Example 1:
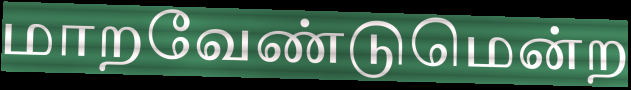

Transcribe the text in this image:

மாறவேண்டுமென்ற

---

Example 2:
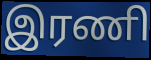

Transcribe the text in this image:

இரணி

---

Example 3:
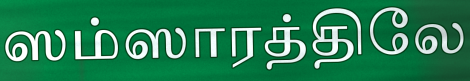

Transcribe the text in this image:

ஸம்ஸாரத்திலே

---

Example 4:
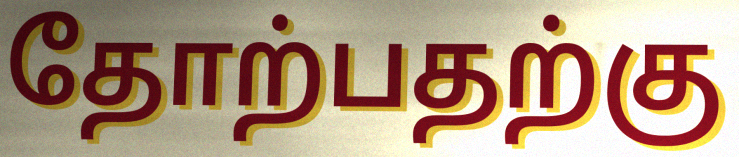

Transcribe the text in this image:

தோற்பதற்கு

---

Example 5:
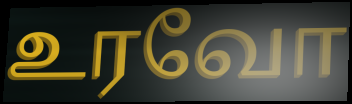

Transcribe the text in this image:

உரவோ